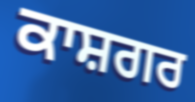
ਕਾਸ਼ਗਰ